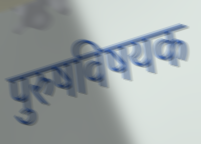
पुरुषविषयक